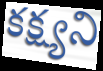
కక్ష్యని